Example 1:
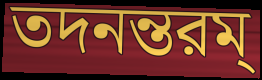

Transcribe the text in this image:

তদনন্তরম্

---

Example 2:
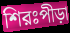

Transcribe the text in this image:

শিরঃপীড়া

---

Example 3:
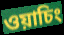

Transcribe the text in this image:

ওয়াচিং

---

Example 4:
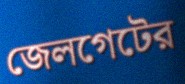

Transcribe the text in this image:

জেলগেটের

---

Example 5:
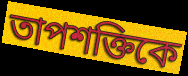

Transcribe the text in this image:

তাপশক্তিকে